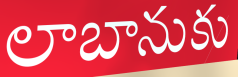
లాబానుకు